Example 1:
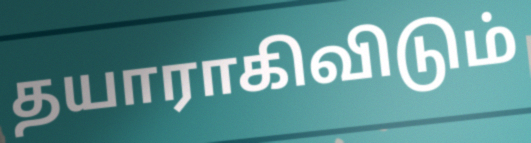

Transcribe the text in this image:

தயாராகிவிடும்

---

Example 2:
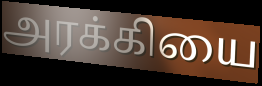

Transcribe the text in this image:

அரக்கியை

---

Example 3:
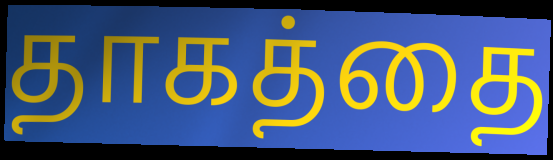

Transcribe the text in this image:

தாகத்தை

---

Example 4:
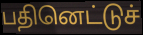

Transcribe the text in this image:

பதினெட்டுச்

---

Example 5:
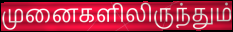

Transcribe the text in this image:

முனைகளிலிருந்தும்